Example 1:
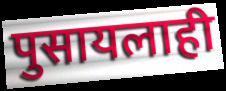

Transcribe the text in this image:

पुसायलाही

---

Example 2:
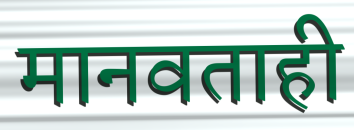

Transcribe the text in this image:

मानवताही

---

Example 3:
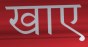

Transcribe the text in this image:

खाए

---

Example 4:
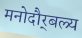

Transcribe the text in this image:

मनोदौर्बल्य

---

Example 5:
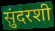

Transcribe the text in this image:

सुंदरशी